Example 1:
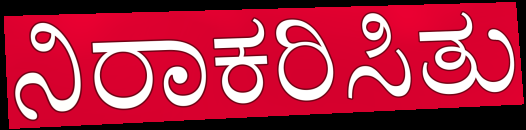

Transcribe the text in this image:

ನಿರಾಕರಿಸಿತು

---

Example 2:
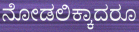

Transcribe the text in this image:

ನೋಡಲಿಕ್ಕಾದರೂ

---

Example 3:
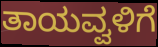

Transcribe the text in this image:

ತಾಯವ್ವಳಿಗೆ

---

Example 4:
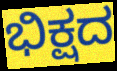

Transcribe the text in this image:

ಭಿಕ್ಷದ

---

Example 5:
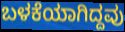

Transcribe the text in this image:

ಬಳಕೆಯಾಗಿದ್ದವು